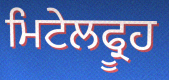
ਮਿਟੇਲਫ੍ਰੂਹ